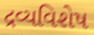
દ્રવ્યવિશેષ